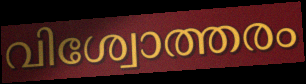
വിശ്വോത്തരം